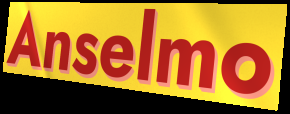
Anselmo